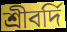
শ্রীবর্দি